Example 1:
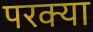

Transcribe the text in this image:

परक्या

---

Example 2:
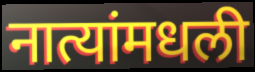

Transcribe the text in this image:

नात्यांमधली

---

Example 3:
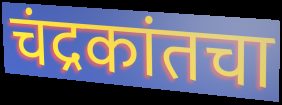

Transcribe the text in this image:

चंद्रकांतचा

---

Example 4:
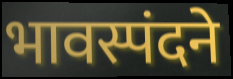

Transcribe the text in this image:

भावस्पंदने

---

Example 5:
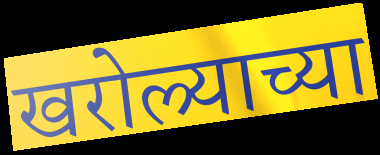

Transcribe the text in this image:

खरोल्याच्या